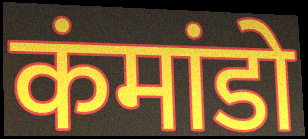
कंमांडो